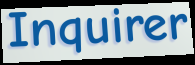
Inquirer